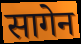
सागेन